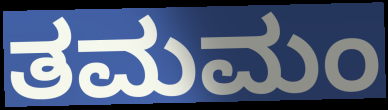
ತಮಮಂ